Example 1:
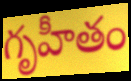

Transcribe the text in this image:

గృహీతం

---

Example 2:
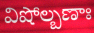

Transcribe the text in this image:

విషోల్బణాః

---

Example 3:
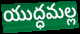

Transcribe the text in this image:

యుద్ధమల్ల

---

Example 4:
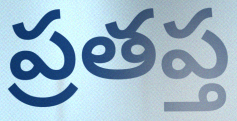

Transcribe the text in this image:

ప్రతప్త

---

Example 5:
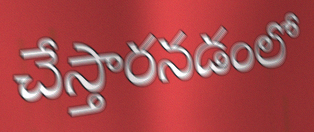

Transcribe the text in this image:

చేస్తారనడంలో